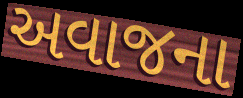
અવાજના